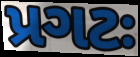
પ્રગટઃ